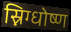
स्निग्धोष्ण